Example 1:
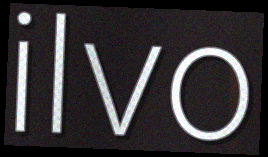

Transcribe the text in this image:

ilvo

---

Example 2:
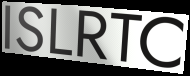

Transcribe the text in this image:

ISLRTC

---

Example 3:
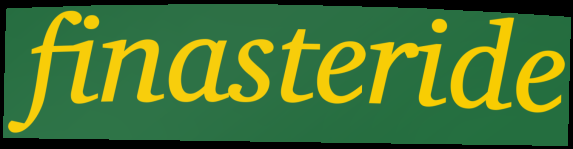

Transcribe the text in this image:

finasteride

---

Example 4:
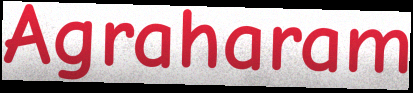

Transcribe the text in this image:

Agraharam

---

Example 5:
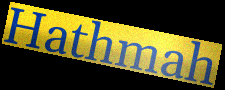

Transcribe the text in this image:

Hathmah